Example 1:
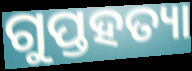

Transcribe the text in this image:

ଗୁପ୍ତହତ୍ୟା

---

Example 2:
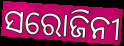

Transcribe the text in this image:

ସରୋଜିନୀ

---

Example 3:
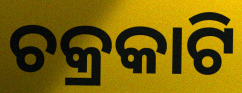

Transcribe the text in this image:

ଚକ୍ରକାଟି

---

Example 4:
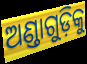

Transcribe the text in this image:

ଅଣ୍ଡାଗୁଡ଼ିକୁ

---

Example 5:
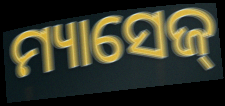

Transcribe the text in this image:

ମ୍ୟାସେଜ୍